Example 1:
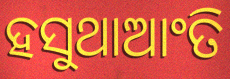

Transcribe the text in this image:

ହସୁଥାଆଂତି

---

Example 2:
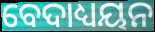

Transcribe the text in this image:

ବେଦାଧ୍ୟୟନ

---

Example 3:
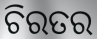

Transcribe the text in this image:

ଚିରତର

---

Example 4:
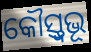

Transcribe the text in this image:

କୌସ୍ତ୍ୱଭୂ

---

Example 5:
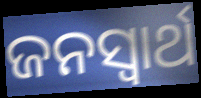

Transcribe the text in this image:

ଜନସ୍ଵାର୍ଥ